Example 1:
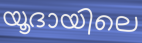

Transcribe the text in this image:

യൂദായിലെ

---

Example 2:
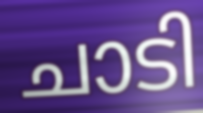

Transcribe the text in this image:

ചാടി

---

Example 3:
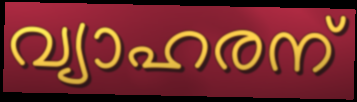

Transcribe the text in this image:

വ്യാഹരന്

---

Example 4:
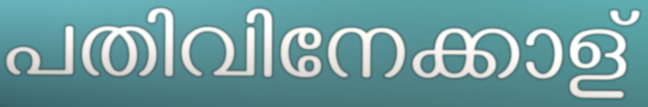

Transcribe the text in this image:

പതിവിനേക്കാള്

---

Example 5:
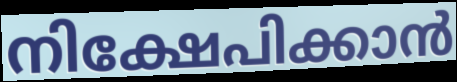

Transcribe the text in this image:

നിക്ഷേപിക്കാൻ